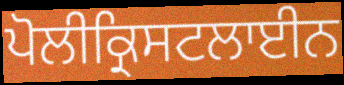
ਪੋਲੀਕ੍ਰਿਸਟਲਾਈਨ